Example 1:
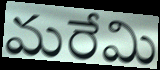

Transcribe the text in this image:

మరేమి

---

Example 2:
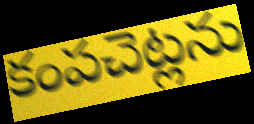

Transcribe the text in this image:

కంపచెట్లను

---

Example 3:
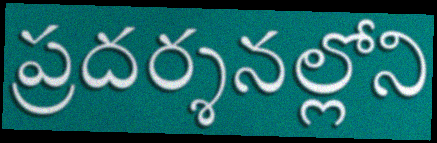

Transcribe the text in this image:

ప్రదర్శనల్లోని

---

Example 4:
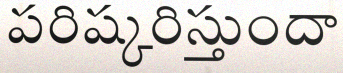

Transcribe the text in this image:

పరిష్కరిస్తుందా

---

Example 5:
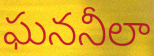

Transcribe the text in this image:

ఘననీలా